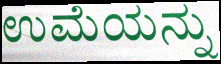
ಉಮೆಯನ್ನು